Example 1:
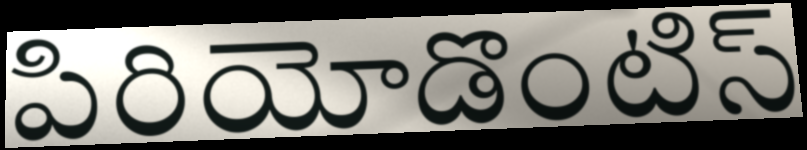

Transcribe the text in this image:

పిరియోడొంటిస్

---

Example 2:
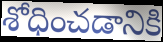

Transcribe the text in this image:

శోధించడానికి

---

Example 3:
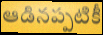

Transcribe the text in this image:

ఆడినప్పటికీ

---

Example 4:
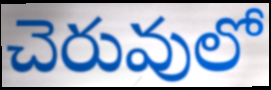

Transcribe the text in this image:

చెరువులో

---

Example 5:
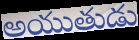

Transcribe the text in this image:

అయుతుడు